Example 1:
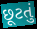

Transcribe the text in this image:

છૂટતું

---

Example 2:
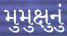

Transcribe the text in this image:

મુમુક્ષુનું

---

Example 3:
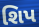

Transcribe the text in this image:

શિપ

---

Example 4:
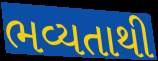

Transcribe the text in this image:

ભવ્યતાથી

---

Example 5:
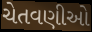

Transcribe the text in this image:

ચેતવણીઓ